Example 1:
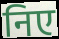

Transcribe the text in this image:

निए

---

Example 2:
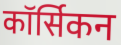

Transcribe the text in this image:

कॉर्सिकन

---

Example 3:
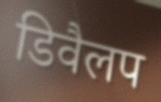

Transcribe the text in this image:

डिवैलप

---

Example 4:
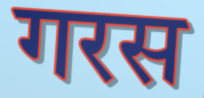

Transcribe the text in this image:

गरस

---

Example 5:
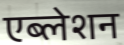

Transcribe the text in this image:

एब्लेशन